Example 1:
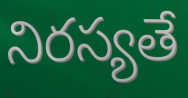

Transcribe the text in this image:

నిరస్యతే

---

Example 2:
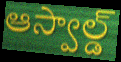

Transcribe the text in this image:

ఆస్వాల్డ్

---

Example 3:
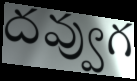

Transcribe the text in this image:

దవ్వుగ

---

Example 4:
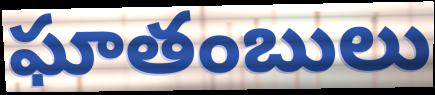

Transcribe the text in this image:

ఘాతంబులు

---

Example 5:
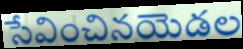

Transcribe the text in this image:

సేవించినయెడల